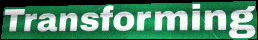
Transforming